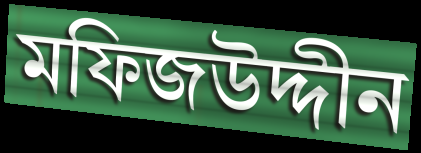
মফিজউদ্দীন